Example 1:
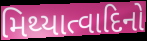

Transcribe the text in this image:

મિથ્યાત્વાદિનો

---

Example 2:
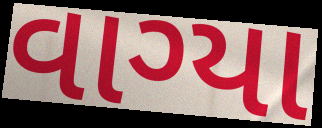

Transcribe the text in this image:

વાગ્યા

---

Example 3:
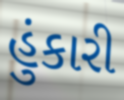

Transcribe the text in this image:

હુંકારી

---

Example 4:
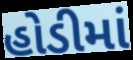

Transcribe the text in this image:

હોડીમાં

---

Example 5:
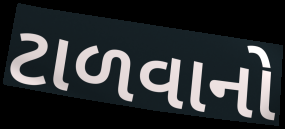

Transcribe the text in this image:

ટાળવાનો